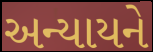
અન્યાયને